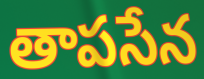
తాపసేన